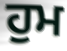
ਹੁਮ